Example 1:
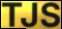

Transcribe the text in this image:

TJS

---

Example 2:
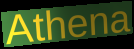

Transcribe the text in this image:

Athena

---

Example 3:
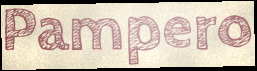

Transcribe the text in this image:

Pampero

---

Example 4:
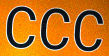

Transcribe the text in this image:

CCC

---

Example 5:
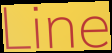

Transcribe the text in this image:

Line